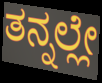
ತನ್ನಲ್ಲೇ